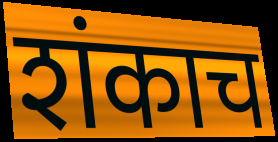
शंकाच